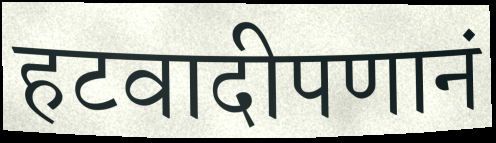
हटवादीपणानं